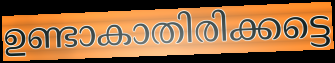
ഉണ്ടാകാതിരിക്കട്ടെ